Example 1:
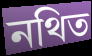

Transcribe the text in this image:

নথিত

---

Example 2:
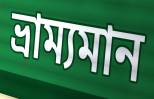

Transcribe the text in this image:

ভ্ৰাম্যমান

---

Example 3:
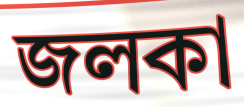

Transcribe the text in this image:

জলকা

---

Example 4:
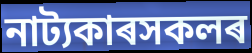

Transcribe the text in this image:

নাট্যকাৰসকলৰ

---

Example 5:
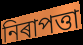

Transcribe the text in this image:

নিৰাপত্তা